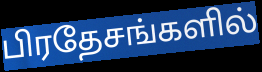
பிரதேசங்களில்